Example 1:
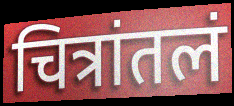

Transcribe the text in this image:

चित्रांतलं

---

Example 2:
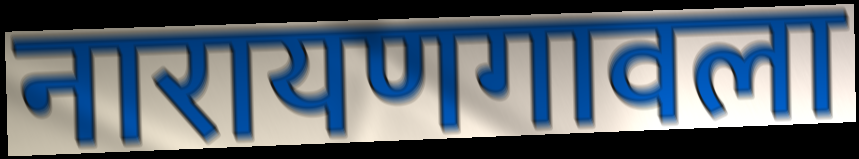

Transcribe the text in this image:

नारायणगावला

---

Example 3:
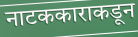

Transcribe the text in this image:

नाटककाराकडून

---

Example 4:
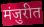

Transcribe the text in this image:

मंजुरीत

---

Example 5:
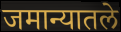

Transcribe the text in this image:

जमान्यातले